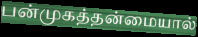
பன்முகத்தன்மையால்